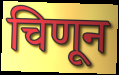
चिणून